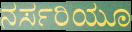
ನರ್ಸರಿಯೂ